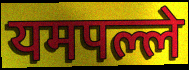
यमपल्ले